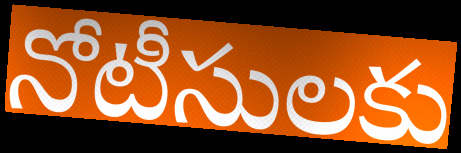
నోటీసులకు